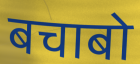
बचाबो